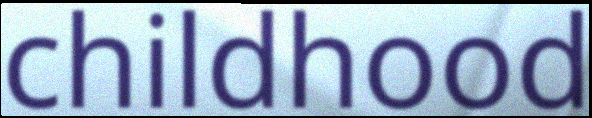
childhood